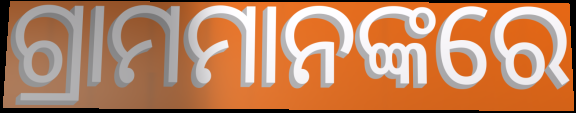
ଗ୍ରାମମାନଙ୍କରେ